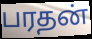
பரதன்